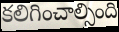
కలిగించాల్సింది